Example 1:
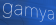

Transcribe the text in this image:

gamya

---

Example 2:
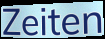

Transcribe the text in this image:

Zeiten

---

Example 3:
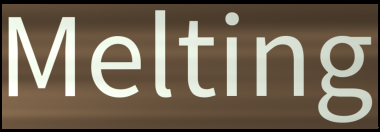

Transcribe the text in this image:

Melting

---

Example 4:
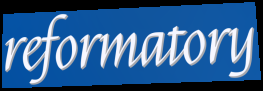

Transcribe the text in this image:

reformatory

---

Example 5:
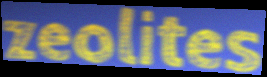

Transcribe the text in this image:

zeolites